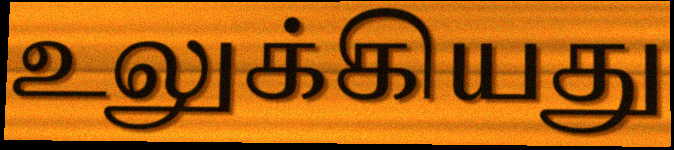
உலுக்கியது